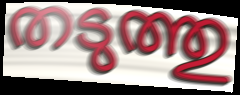
തടുത്തു